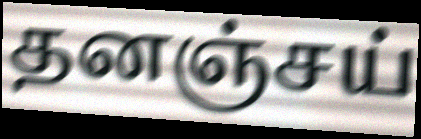
தனஞ்சய்